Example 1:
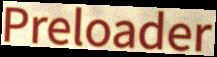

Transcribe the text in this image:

Preloader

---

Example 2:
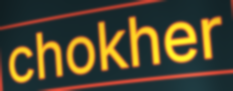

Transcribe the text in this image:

chokher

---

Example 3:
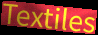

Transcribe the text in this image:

Textiles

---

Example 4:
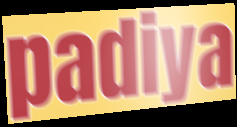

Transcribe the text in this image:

padiya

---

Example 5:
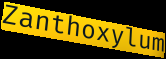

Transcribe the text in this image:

Zanthoxylum